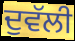
ਦੁਵੱਲੀ